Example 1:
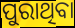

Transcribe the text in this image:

ପୁରାଥିବା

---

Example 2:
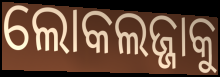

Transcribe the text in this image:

ଲୋକଲଜ୍ଜାକୁ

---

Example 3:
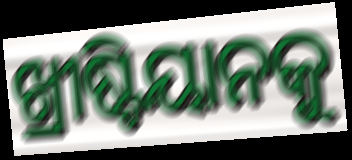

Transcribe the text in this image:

ଖ୍ରୀଷ୍ଟିୟାନକୁ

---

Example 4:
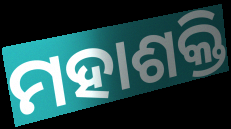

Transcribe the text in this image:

ମହାଶକ୍ତି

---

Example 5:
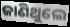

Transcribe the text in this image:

ଜାଣିଥୁଲେ